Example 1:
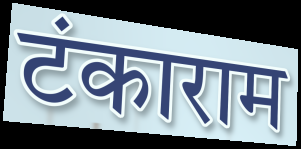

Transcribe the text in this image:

टंकाराम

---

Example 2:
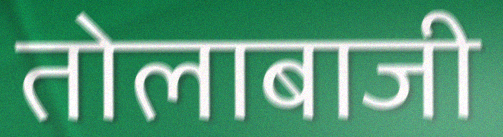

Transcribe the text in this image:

तोलाबाजी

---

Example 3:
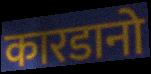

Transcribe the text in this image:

कारडानो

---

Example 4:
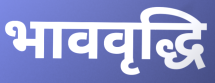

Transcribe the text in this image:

भाववृद्धि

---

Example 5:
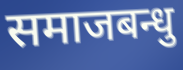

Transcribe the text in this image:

समाजबन्धु